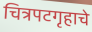
चित्रपटगृहाचे